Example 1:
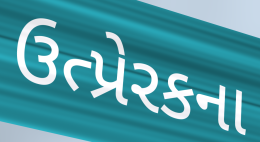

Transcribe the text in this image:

ઉત્પ્રેરકના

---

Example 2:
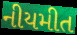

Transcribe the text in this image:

નીયમીત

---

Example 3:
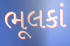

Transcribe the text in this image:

ભૂલકાં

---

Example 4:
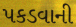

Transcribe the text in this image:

પકડવાની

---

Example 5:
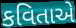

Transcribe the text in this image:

કવિતાએ